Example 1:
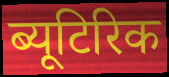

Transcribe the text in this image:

ब्यूटिरिक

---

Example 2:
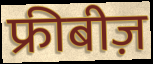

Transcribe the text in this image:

फ्रीबीज़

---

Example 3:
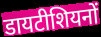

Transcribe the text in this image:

डायटीशियनों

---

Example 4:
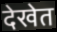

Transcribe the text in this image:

देखेत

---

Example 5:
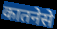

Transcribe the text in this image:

कातनेसे